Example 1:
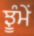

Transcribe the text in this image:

ਝੂੰਮੇਂ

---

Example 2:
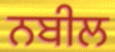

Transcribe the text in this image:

ਨਬੀਲ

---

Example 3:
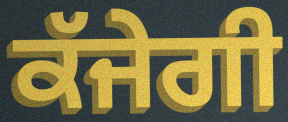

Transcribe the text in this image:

ਕੱਜੇਗੀ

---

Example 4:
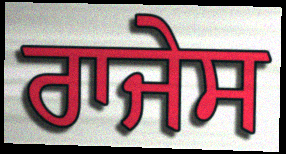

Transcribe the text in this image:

ਰਾਜੇਸ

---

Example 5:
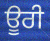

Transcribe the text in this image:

ਊਰੀ